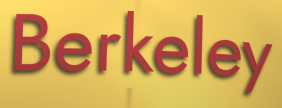
Berkeley